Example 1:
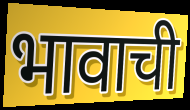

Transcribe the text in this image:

भावाची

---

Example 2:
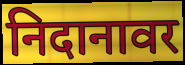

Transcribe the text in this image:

निदानावर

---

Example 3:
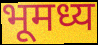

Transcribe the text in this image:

भूमध्य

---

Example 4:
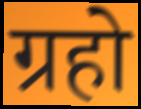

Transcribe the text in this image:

ग्रहो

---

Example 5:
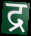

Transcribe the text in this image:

द्र